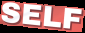
SELF